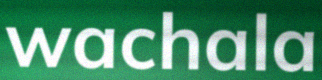
wachala